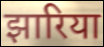
झारिया